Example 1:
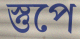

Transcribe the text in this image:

স্তুপে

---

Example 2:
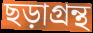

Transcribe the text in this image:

ছড়াগ্রন্থ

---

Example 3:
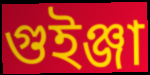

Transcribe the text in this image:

গুইঞ্জা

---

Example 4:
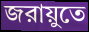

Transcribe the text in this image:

জরায়ুতে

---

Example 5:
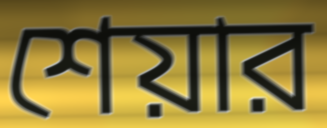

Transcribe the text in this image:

শেয়ার